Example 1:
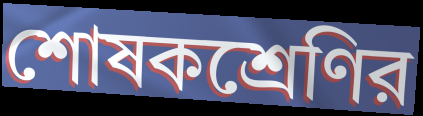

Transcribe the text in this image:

শোষকশ্রেণির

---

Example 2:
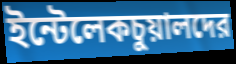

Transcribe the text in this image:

ইন্টেলেকচুয়ালদের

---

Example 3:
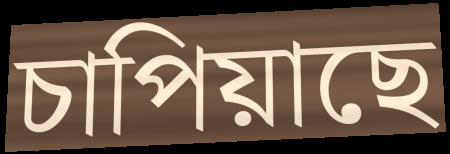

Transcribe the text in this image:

চাপিয়াছে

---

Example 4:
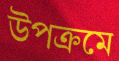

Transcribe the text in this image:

উপক্রমে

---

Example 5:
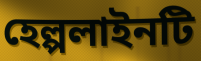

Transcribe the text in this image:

হেল্পলাইনটি